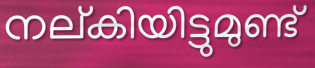
നല്കിയിട്ടുമുണ്ട്